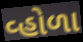
વ્હોળા